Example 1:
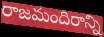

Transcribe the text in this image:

రాజమందిరాన్ని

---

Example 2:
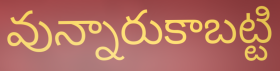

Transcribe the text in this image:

వున్నారుకాబట్టి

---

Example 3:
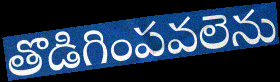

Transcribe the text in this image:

తొడిగింపవలెను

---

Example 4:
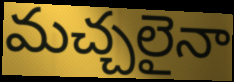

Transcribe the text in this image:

మచ్చలైనా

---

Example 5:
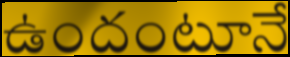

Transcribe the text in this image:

ఉందంటూనే